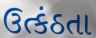
ઉત્કંઠતા